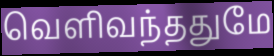
வெளிவந்ததுமே